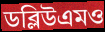
ডব্লিউএমও